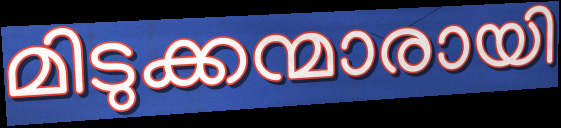
മിടുക്കന്മാരായി